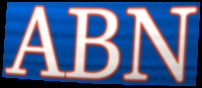
ABN